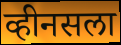
व्हीनसला